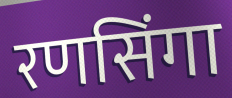
रणसिंगा